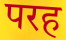
परह